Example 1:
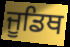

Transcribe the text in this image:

ਜੂਡਿਥ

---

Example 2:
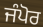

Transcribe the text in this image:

ਜੰਪੋਰ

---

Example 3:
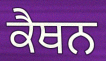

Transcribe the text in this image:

ਕੈਥਨ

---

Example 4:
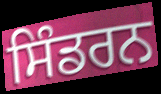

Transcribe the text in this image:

ਸਿੰਡਰਨ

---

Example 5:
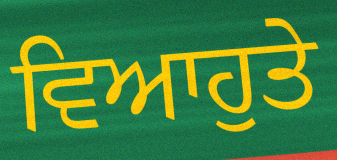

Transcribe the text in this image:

ਵਿਆਹੁਤੇ